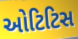
ઓટિટિસ